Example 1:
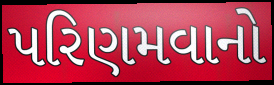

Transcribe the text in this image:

પરિણમવાનો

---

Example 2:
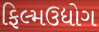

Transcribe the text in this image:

ફિલ્મઉદ્યોગ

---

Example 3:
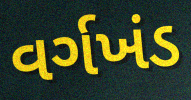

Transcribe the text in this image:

વર્ગખંડ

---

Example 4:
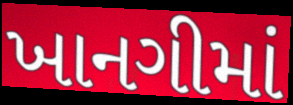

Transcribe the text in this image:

ખાનગીમાં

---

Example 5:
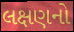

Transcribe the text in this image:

લક્ષણનો